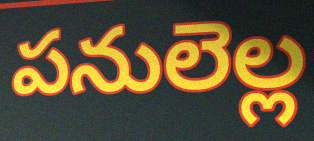
పనులెల్ల